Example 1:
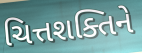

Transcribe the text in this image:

ચિત્તશક્તિને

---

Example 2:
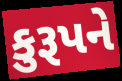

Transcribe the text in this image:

કુરૂપને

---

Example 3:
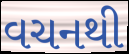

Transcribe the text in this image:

વચનથી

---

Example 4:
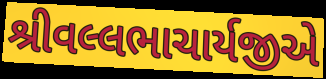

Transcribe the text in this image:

શ્રીવલ્લભાચાર્યજીએ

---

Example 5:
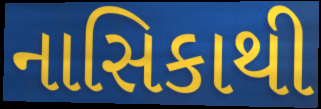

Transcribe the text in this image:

નાસિકાથી